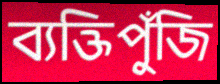
ব্যক্তিপুঁজি